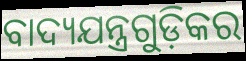
ବାଦ୍ୟଯନ୍ତ୍ରଗୁଡ଼ିକର